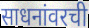
साधनांवरची